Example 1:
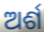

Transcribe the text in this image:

ଅର୍ଶ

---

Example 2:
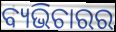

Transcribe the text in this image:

ବ୍ୟଭିଚାରର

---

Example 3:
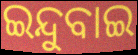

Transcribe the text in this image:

ଇନ୍ଦୁବାଇ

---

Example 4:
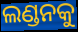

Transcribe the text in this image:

ଲଣ୍ଡନକୁ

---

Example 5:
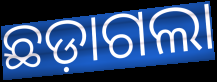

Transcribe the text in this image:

ଛଡ଼ାଗଲା